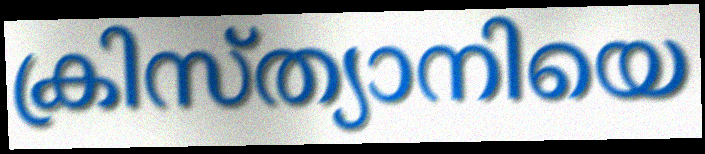
ക്രിസ്ത്യാനിയെ